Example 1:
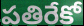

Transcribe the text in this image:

పతిరేకో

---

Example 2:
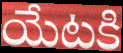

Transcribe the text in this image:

యేటకి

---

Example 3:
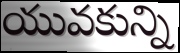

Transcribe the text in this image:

యువకున్ని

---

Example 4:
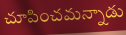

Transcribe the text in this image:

చూపించమన్నాడు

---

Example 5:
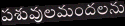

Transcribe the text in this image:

పశువులమందలను